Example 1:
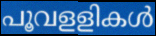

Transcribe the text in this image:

പൂവളളികൾ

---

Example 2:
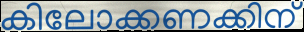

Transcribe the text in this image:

കിലോക്കണക്കിന്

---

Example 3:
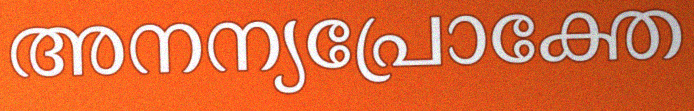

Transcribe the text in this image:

അനന്യപ്രോക്തേ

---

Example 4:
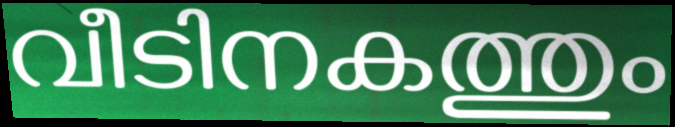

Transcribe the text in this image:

വീടിനകത്തും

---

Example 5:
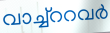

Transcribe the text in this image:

വാച്ച്ററവർ